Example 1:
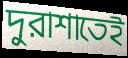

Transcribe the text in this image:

দুরাশাতেই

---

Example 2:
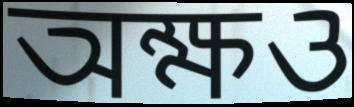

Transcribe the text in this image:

অক্ষও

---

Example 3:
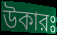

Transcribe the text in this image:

উকারঃ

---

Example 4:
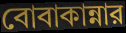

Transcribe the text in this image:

বোবাকান্নার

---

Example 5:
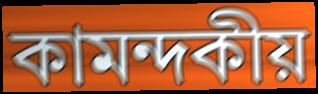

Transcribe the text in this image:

কামন্দকীয়